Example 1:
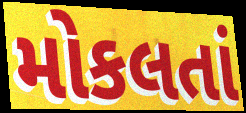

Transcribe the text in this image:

મોકલતાં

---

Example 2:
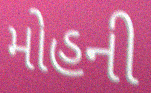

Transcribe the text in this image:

મોહની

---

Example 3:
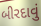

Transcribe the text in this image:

બીરદાવું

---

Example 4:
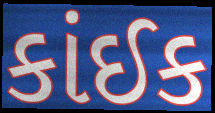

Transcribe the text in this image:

કાંઈક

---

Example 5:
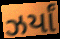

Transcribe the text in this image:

ઝર્યાં